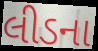
લીડના